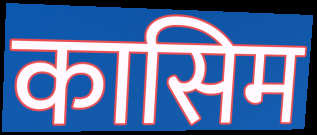
कासिम